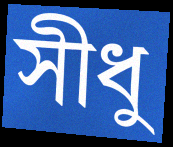
সীধু